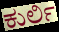
ಕುರ್ಲಿ